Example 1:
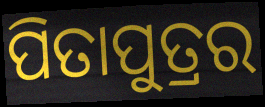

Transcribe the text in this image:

ପିତାପୁତ୍ରର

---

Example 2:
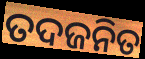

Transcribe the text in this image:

ତଦଜନିତ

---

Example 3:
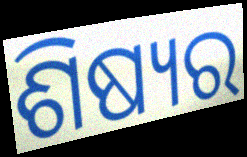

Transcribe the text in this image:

ଶିଷ୍ୟର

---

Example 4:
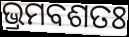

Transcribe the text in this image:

ଭ୍ରମବଶତଃ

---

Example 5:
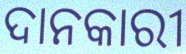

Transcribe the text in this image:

ଦାନକାରୀ